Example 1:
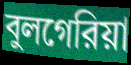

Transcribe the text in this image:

বুলগেরিয়া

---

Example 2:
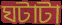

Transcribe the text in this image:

ঘটাটা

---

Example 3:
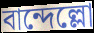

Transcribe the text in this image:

বান্দেল্লো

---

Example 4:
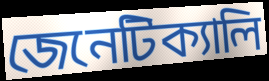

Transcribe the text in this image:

জেনেটিক্যালি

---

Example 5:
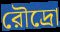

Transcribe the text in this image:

রৌদ্রো